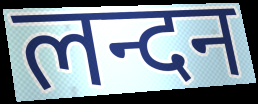
लन्दन